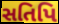
સતિપિ